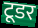
टूडर